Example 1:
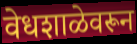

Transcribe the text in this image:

वेधशाळेवरून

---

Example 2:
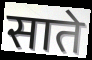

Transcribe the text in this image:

साते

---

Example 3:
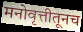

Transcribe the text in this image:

मनोवृत्तीतूनच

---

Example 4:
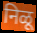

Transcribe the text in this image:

निळू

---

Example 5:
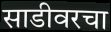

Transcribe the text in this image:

साडीवरचा